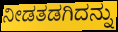
ನೀಡತಡಗಿದನ್ನು